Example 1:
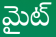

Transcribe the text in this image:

మైట్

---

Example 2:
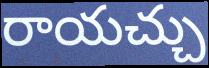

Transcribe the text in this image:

రాయచ్చు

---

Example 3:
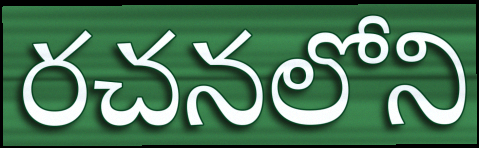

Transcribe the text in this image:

రచనలోని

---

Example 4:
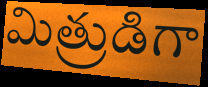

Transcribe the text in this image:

మిత్రుడిగా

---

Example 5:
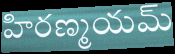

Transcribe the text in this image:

హిరణ్మయమ్